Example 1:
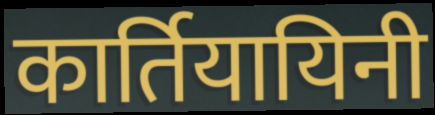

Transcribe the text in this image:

कार्तियायिनी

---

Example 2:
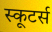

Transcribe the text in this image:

स्‍कूटर्स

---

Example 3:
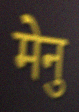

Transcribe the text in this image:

मेनु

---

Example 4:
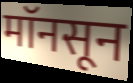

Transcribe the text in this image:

मॉनसून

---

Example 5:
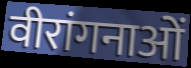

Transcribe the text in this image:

वीरांगनाओं